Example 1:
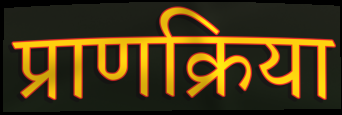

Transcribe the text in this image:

प्राणक्रिया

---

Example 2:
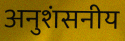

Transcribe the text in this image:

अनुशंसनीय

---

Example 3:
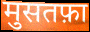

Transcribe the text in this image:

मुसतफ़ा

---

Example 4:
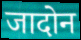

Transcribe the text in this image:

जादोन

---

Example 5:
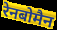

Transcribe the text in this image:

रेनबोमैन